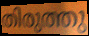
തിരുത്തു